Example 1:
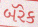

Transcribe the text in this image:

બૅરેક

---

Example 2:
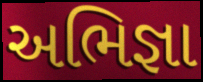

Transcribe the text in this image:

અભિજ્ઞા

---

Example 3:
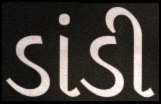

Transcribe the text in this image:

ડાંડી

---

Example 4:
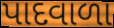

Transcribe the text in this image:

પાદવાળા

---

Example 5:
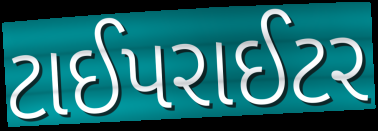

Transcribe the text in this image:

ટાઈપરાઈટર